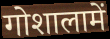
गोशालामें